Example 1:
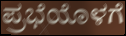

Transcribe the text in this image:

ಪ್ರಭೆಯೊಳಗೆ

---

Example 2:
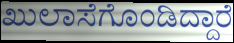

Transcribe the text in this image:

ಖುಲಾಸೆಗೊಂಡಿದ್ದಾರೆ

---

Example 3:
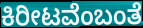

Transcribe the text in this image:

ಕಿರೀಟವೆಂಬಂತೆ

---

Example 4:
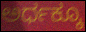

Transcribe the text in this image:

ಅರ್ಧಕ್ಕೂ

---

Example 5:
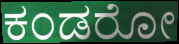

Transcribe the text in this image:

ಕಂಡರೋ